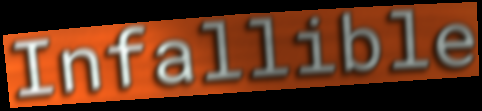
Infallible